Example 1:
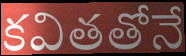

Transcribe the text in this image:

కవితతోనే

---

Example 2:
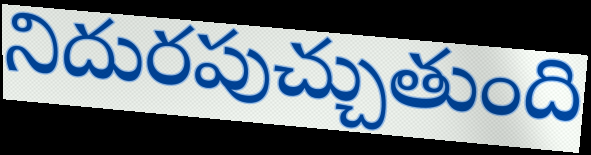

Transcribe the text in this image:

నిదురపుచ్చుతుంది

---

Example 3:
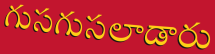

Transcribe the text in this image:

గుసగుసలాడారు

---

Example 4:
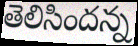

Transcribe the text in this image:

తెలిసిందన్న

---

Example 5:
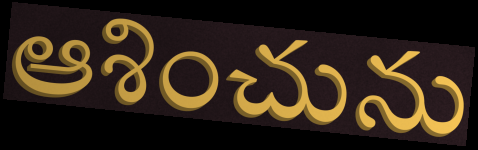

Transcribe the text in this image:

ఆశించును